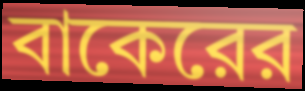
বাকেরের